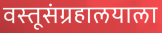
वस्तूसंग्रहालयाला